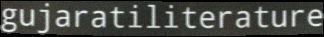
gujaratiliterature